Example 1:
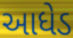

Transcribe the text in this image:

આધેડ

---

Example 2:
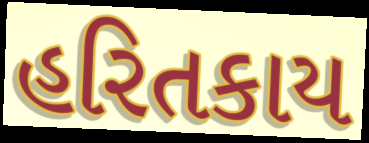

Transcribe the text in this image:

હરિતકાય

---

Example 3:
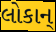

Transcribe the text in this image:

લોકાન્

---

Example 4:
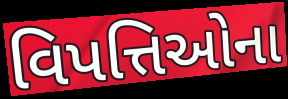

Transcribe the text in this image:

વિપત્તિઓના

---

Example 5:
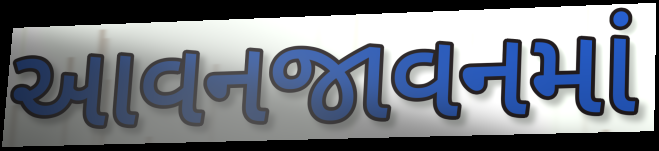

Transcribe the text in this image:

આવનજાવનમાં